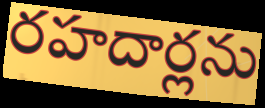
రహదార్లను